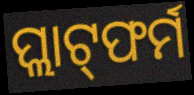
ପ୍ଲାଟ୍‌ଫର୍ମ